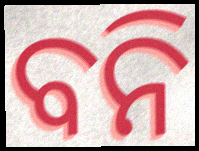
ବନି